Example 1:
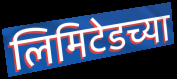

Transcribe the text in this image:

लिमिटेडच्या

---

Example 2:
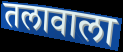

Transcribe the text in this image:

तलावाला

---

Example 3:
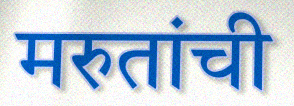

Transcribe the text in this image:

मरुतांची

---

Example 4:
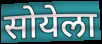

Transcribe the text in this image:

सोयेला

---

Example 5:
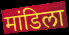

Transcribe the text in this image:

मांडिला